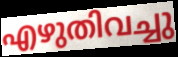
എഴുതിവച്ചു